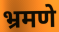
भ्रमणे